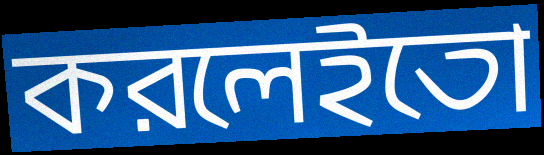
করলেইতো